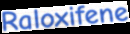
Raloxifene